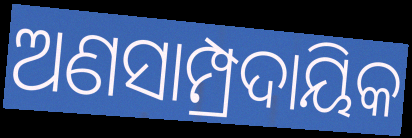
ଅଣସାମ୍ପ୍ରଦାୟିକ